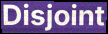
Disjoint